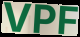
VPF